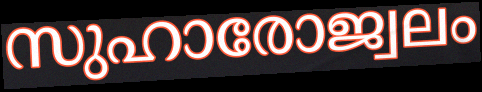
സുഹാരോജ്വലം